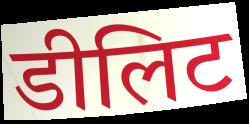
डीलिट